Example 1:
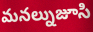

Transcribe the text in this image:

మనల్నుజూసి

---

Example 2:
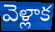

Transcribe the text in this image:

వెళ్లాక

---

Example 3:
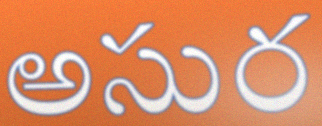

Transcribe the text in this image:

అసుర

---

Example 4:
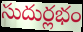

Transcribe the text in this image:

సుదుర్లభం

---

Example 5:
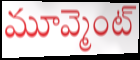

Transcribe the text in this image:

మూవ్మెంట్